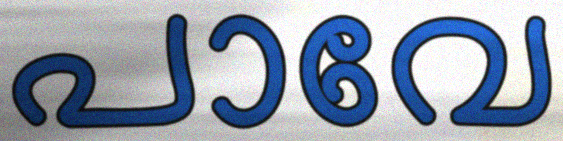
പാവേ